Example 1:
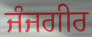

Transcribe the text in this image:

ਜੰਜਗੀਰ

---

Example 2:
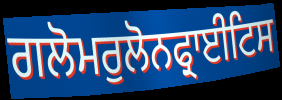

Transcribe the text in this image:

ਗਲੋਮਰੁਲੋਨਫ੍ਰਾਈਟਿਸ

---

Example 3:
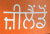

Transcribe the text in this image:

ਜ਼ੀਲੈਂਡੋਂ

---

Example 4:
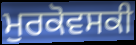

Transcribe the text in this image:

ਮੁਰਕੋਵਸਕੀ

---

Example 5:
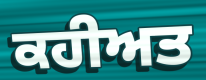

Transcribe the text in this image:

ਕਹੀਅਤ